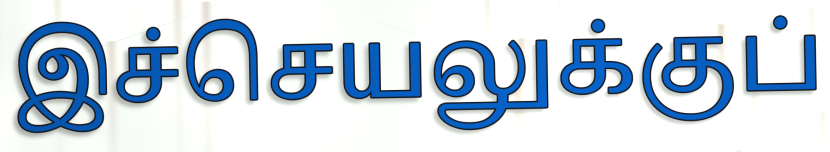
இச்செயலுக்குப்